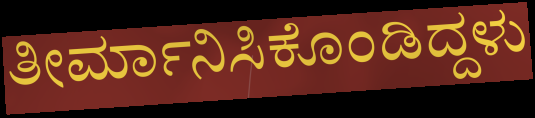
ತೀರ್ಮಾನಿಸಿಕೊಂಡಿದ್ದಳು